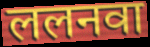
ललनवा